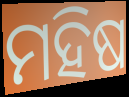
ମହିଷ